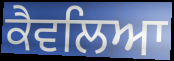
ਕੈਵਲਿਆ